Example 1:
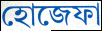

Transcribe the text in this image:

হোজেফা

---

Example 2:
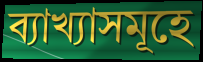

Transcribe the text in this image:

ব্যাখ্যাসমূহে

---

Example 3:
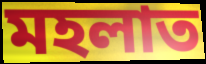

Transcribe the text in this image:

মহলাত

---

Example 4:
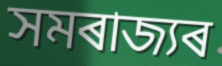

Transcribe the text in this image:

সমৰাজ্যৰ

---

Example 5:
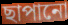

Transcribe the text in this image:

ছাপানো